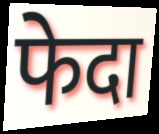
फेदा